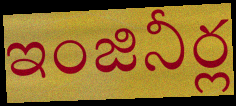
ఇంజినీర్ల